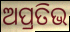
ଅପ୍ରତିଭ